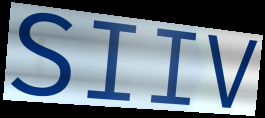
SIIV